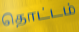
தொட்டம்